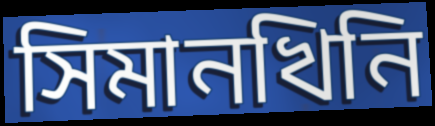
সিমানখিনি